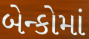
બેન્કોમાં